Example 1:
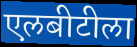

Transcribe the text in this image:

एलबीटीला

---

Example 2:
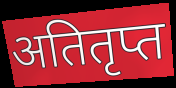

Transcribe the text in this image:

अतितृप्त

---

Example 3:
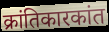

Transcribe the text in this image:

क्रांतिकारकांत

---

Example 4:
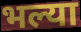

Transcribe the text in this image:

भल्या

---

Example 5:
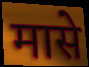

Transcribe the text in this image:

मासे